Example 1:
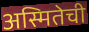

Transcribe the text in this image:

अस्मितेची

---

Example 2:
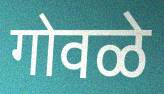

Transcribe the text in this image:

गोवळे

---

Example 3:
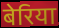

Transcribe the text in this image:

बेरिया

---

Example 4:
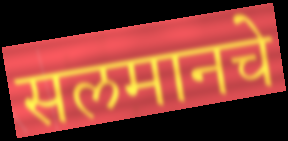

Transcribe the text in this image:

सलमानचे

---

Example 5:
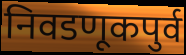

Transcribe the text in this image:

निवडणूकपुर्व